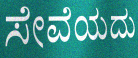
ಸೇವೆಯದು